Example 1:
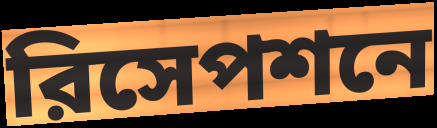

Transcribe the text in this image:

রিসেপশনে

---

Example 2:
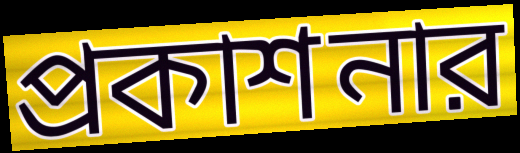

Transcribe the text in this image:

প্রকাশনার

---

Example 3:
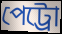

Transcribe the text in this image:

পেট্রো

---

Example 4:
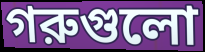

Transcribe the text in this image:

গরুগুলো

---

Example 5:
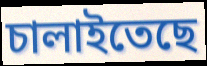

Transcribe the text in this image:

চালাইতেছে